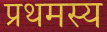
प्रथमस्य